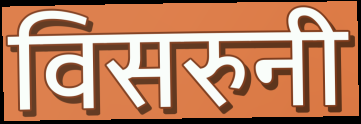
विसरुनी